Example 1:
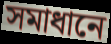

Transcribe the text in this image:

সমাধানে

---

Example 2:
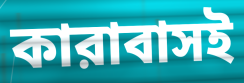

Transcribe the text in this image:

কারাবাসই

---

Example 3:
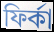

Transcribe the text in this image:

ফির্কা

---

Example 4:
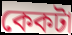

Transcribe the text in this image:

কেকটা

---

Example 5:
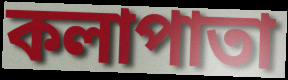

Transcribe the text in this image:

কলাপাতা